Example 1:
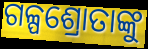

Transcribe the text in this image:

ଗଳ୍ପଶ୍ରୋତାଙ୍କୁ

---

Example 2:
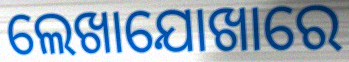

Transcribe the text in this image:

ଲେଖାଯୋଖାରେ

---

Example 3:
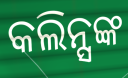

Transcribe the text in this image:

କଲିନ୍ସଙ୍କ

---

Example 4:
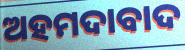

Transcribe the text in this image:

ଅହମଦାବାଦ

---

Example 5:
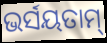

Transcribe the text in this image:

ଭର୍ସୟତାମ୍